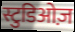
स्टुडिओज़